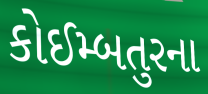
કોઈમ્બતુરના